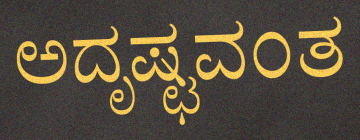
ಅದೃಷ್ಟವಂತ